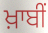
ਖ਼ਾਬੀਂ